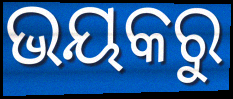
ଭୟକରୁ